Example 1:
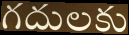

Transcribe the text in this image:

గదులకు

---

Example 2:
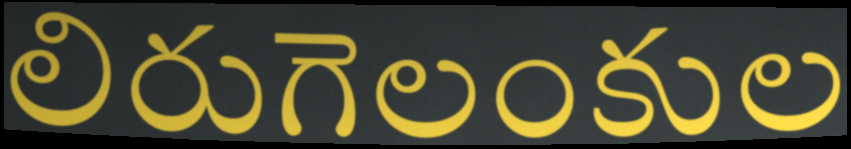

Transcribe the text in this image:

లిరుగెలంకుల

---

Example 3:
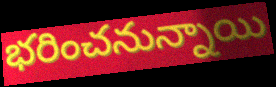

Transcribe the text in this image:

భరించనున్నాయి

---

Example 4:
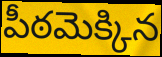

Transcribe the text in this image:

పీఠమెక్కిన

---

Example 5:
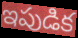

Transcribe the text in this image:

ఇపుడిక